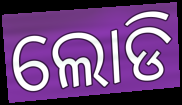
ଲୋଡି